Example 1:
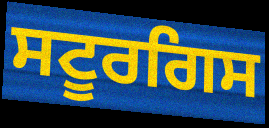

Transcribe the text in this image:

ਸਟੂਰਗਿਸ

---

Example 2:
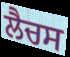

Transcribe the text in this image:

ਲੈਚਸ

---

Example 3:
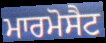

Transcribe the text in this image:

ਮਾਰਮੋਸੈਟ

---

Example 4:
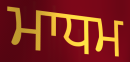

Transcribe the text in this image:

ਮਾਧਮ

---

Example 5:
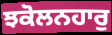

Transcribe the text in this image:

ਝਕੋਲਨਹਾਰੁ